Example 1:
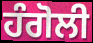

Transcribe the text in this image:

ਹੰਗੋਲੀ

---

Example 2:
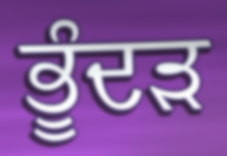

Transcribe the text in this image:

ਭੂੰਦੜ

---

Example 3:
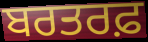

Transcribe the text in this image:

ਬਰਤਰਫ਼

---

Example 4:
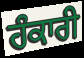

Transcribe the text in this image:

ਹੰਕਾਰੀ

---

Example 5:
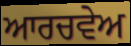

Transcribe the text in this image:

ਆਰਚਵੇਅ